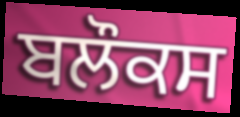
ਬਲੌਕਸ